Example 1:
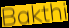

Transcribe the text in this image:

Bakthi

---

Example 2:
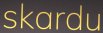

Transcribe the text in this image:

skardu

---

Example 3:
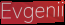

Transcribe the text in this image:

Evgenii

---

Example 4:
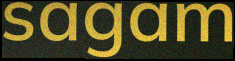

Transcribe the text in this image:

sagam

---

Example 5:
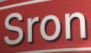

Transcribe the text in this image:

Sron